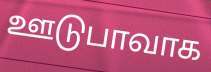
ஊடுபாவாக